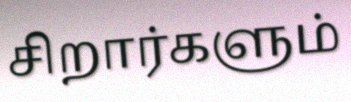
சிறார்களும்